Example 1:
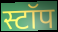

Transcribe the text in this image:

स्टॉप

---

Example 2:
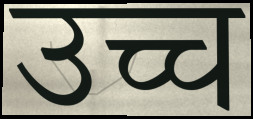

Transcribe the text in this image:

उच्च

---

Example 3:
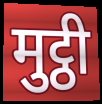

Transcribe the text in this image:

मुट्ठी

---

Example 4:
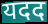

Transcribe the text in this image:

यदद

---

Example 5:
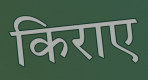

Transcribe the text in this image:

किराए